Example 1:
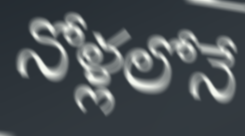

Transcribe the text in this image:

నోళ్లలోనే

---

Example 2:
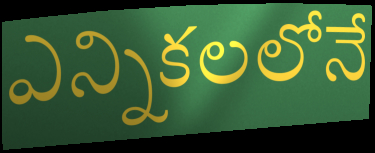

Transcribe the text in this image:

ఎన్నికలలోనే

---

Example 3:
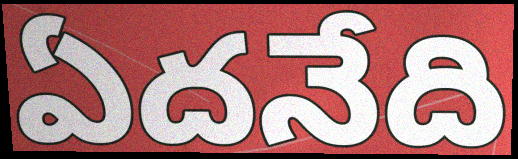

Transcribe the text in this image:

ఏదనేది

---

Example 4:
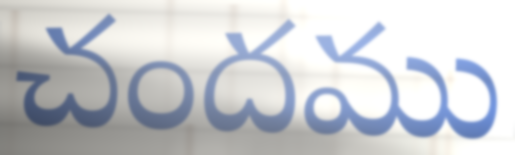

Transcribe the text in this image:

చందము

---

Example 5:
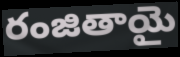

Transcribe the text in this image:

రంజితాయై